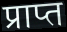
प्राप्‍त